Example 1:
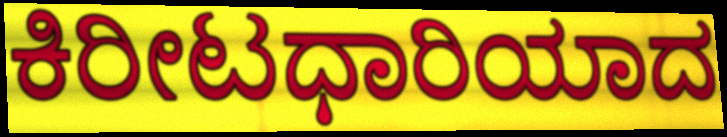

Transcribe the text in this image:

ಕಿರೀಟಧಾರಿಯಾದ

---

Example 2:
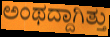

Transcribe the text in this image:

ಅಂಥದ್ದಾಗಿತ್ತು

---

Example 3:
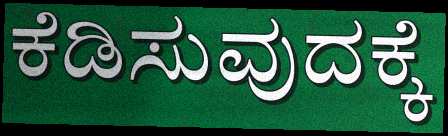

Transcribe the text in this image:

ಕೆಡಿಸುವುದಕ್ಕೆ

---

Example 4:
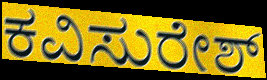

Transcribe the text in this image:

ಕವಿಸುರೇಶ್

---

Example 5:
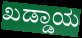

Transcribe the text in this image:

ಖಡ್ಡಾಯ